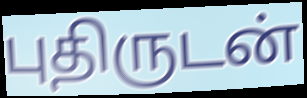
புதிருடன்